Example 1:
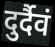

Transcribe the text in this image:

दुर्दैवं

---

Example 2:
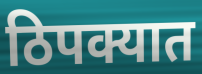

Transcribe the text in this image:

ठिपक्यात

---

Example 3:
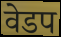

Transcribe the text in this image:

वेडप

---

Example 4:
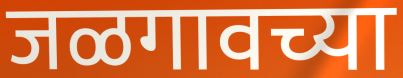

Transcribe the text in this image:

जळगावच्या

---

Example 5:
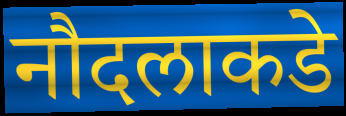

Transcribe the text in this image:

नौदलाकडे